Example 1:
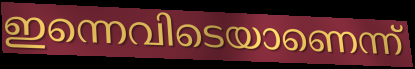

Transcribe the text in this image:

ഇന്നെവിടെയാണെന്ന്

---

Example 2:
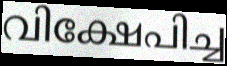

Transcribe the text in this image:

വിക്ഷേപിച്ച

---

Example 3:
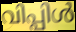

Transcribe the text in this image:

വിപ്പിൾ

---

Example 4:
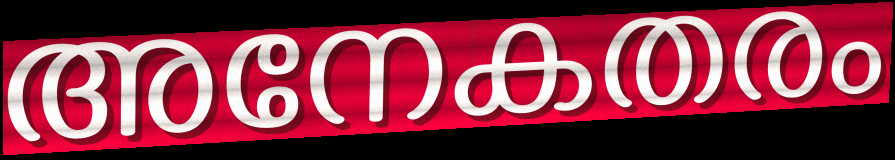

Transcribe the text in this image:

അനേകതരം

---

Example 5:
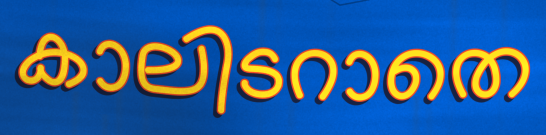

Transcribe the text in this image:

കാലിടറാതെ